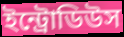
ইন্ট্রোডিউস